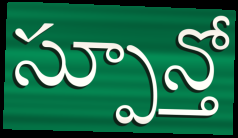
స్పూన్తో